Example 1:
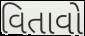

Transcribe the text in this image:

વિતાવો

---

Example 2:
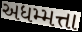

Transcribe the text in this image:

અધમ્મત્તા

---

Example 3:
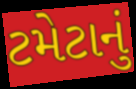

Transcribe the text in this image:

ટમેટાનું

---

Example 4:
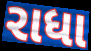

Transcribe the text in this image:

રાધા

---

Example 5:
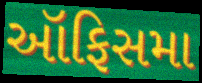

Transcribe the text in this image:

ઑફિસમા